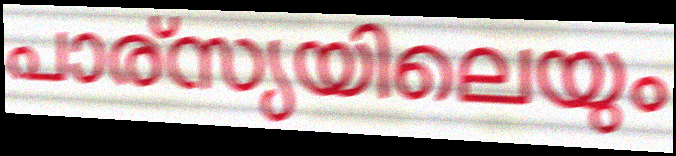
പാര്സ്യയിലെയും